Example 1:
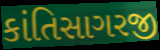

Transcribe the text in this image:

કાંતિસાગરજી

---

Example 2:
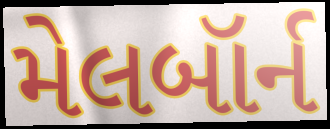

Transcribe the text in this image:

મેલબૉર્ન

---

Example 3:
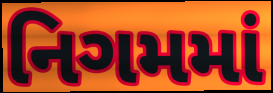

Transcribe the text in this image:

નિગમમાં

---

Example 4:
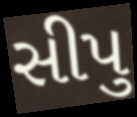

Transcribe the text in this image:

સીપુ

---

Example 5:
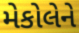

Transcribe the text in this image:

મેકોલેને